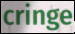
cringe